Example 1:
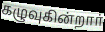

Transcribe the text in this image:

கழுவுகின்றார்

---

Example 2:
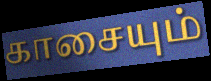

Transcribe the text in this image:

காசையும்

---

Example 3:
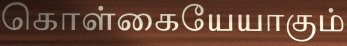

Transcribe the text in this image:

கொள்கையேயாகும்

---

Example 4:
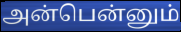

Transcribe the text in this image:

அன்பென்னும்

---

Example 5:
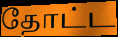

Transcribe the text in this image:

தோட்ட